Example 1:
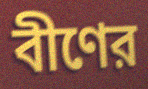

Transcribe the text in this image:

বীণের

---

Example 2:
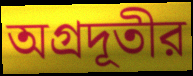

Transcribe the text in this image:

অগ্রদূতীর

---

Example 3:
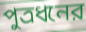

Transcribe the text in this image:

পুত্রধনের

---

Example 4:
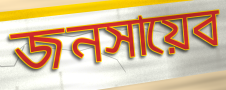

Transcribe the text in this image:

জনসায়েব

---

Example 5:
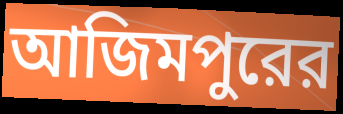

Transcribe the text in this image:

আজিমপুরের